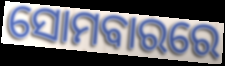
ସୋମବାରରେ